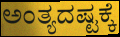
ಅಂತ್ಯದಷ್ಟಕ್ಕೆ